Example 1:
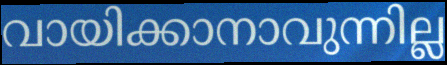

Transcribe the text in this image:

വായിക്കാനാവുന്നില്ല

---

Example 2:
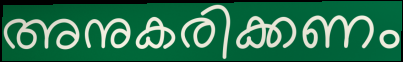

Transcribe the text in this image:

അനുകരിക്കണം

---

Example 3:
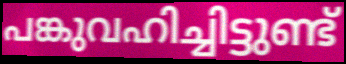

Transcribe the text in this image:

പങ്കുവഹിച്ചിട്ടുണ്ട്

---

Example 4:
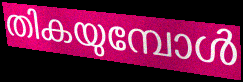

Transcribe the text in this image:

തികയുമ്പോൾ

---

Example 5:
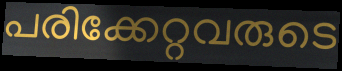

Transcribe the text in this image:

പരിക്കേറ്റവരുടെ